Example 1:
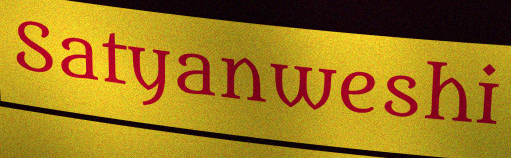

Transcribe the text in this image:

Satyanweshi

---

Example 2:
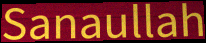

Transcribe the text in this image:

Sanaullah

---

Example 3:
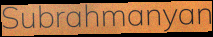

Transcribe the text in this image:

Subrahmanyan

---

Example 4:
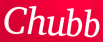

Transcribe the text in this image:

Chubb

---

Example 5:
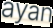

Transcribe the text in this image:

ayan